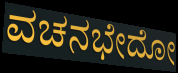
ವಚನಭೇದೋ